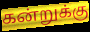
கன்றுக்கு